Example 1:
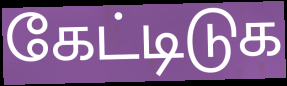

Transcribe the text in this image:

கேட்டிடுக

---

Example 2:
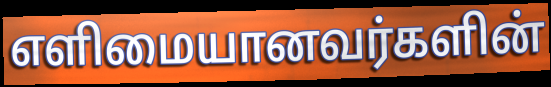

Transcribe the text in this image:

எளிமையானவர்களின்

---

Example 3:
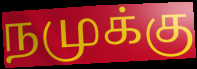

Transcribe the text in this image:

நமுக்கு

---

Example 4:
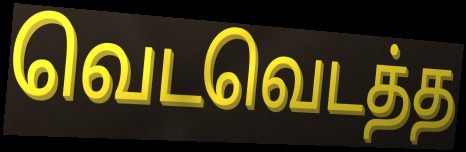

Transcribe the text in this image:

வெடவெடத்த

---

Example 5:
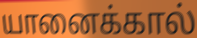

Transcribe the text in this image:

யானைக்கால்